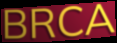
BRCA